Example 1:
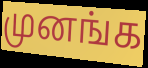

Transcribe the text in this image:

முனங்க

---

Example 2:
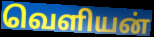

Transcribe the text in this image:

வெளியன்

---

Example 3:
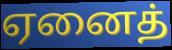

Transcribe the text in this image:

ஏனைத்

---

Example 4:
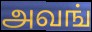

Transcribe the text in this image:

அவங்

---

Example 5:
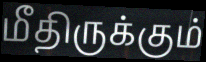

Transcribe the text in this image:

மீதிருக்கும்